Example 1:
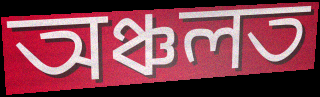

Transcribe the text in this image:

অঞ্চলত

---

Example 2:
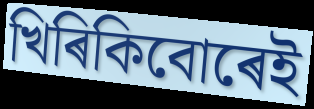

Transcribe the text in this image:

খিৰিকিবোৰেই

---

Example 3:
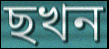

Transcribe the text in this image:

ছখন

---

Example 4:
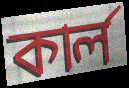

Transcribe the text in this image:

কাৰ্ল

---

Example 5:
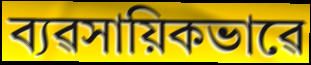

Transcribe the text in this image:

ব্যৱসায়িকভাৱে